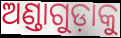
ଅଣ୍ଡାଗୁଡ଼ାକୁ